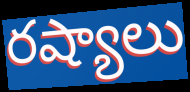
రష్యాలు